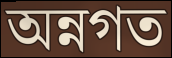
অন্নগত